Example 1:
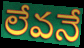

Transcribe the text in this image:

లేవనే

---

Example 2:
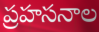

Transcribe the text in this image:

ప్రహసనాల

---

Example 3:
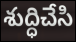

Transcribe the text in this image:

శుద్ధిచేసి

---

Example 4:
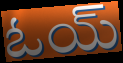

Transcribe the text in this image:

ఓయ్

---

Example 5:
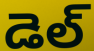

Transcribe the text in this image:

డెల్